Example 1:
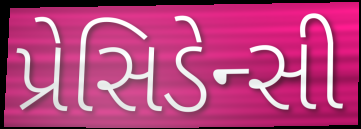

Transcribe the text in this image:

પ્રેસિડેન્સી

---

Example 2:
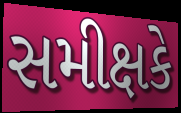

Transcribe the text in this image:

સમીક્ષકે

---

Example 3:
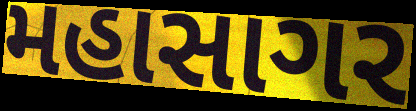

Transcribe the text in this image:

મહાસાગર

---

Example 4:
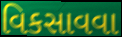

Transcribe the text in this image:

વિકસાવવા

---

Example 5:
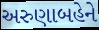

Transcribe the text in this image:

અરુણાબહેને